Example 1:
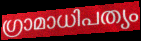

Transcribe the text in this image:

ഗ്രാമാധിപത്യം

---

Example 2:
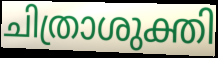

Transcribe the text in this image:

ചിത്രാശുക്തി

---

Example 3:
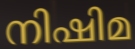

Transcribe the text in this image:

നിഷിമ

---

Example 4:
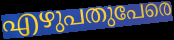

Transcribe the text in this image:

എഴുപതുപേരെ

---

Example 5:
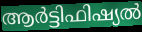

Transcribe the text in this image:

ആർട്ടിഫിഷ്യൽ